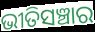
ଭୀତିସଞ୍ଚାର